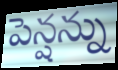
పెన్షన్ను